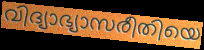
വിദ്യാഭ്യാസരീതിയെ